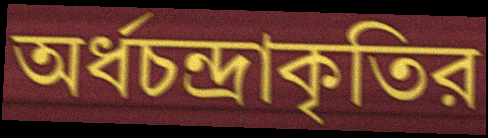
অর্ধচন্দ্রাকৃতির